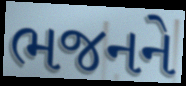
ભજનને